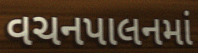
વચનપાલનમાં